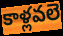
కాళ్లవలె